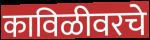
काविळीवरचे